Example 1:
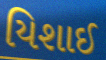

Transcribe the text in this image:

યિશાઈ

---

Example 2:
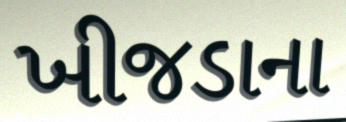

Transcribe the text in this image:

ખીજડાના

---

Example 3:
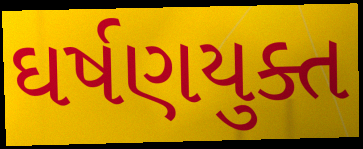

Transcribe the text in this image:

ઘર્ષણયુક્ત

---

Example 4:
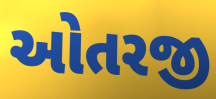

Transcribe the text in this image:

ઓતરજી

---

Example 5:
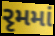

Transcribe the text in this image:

રૃમમાં